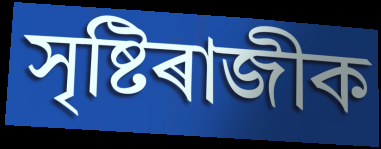
সৃষ্টিৰাজীক